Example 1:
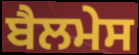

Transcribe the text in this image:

ਬੈਲਮੇਸ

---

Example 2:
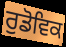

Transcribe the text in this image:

ਰੁਡੋਵਿਕ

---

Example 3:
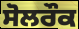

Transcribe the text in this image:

ਸੋਲਰੌਕ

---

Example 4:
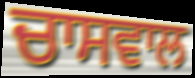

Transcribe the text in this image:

ਚਾਸਵਾਲ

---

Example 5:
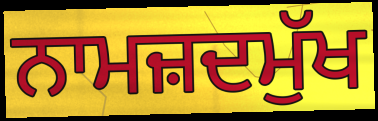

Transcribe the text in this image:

ਨਾਮਜ਼ਦਮੁੱਖ